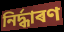
নিৰ্দ্ধাৰণ